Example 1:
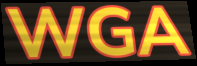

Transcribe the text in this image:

WGA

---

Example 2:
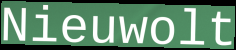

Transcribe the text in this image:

Nieuwolt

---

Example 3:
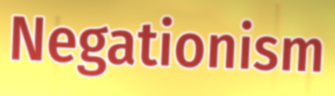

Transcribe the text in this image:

Negationism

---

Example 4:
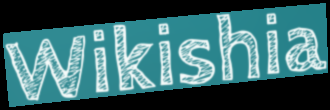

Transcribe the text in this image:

Wikishia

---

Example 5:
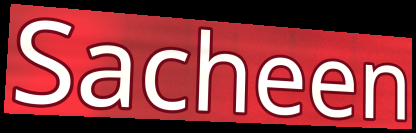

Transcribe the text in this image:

Sacheen